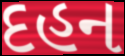
દહન